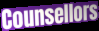
Counsellors